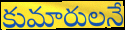
కుమారులనే